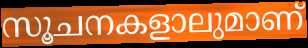
സൂചനകളാലുമാണ്